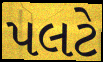
પલટે